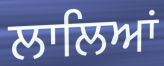
ਲਾਲਿਆਂ